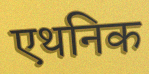
एथनिक